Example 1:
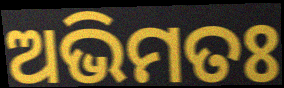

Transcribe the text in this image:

ଅଭିମତଃ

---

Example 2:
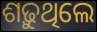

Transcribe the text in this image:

ଶଢ଼ୁଥିଲେ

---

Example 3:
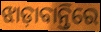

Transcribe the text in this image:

ଝାଡ଼ାବାନ୍ତିରେ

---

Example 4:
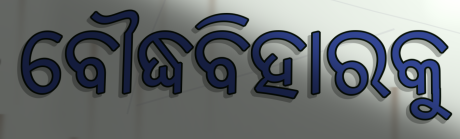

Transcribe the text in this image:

ବୌଦ୍ଧବିହାରକୁ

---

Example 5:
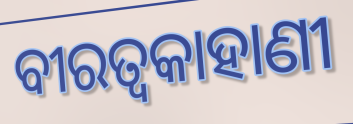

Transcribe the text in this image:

ବୀରତ୍ୱକାହାଣୀ